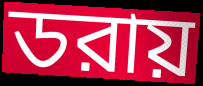
ডরায়